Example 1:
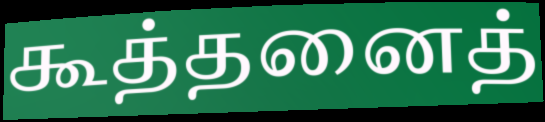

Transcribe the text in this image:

கூத்தனைத்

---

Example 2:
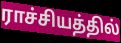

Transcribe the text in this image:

ராச்சியத்தில்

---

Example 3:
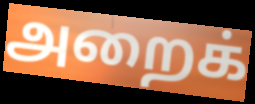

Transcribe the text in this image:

அறைக்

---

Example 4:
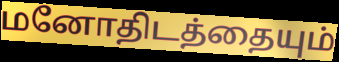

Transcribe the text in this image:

மனோதிடத்தையும்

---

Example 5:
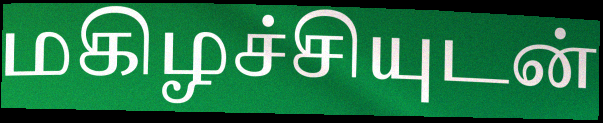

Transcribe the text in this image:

மகிழச்சியுடன்